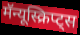
मॅन्यूस्क्रिप्ट्स